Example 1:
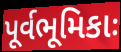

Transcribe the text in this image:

પૂર્વભૂમિકાઃ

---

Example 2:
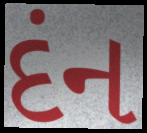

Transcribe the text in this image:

દંન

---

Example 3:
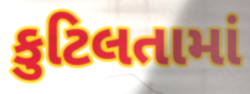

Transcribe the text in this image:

કુટિલતામાં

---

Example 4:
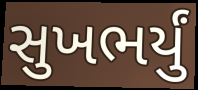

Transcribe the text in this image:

સુખભર્યું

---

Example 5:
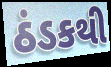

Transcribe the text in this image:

ઠંડકથી